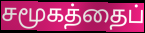
சமூகத்தைப்